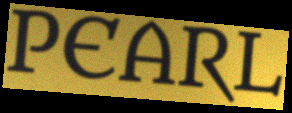
PEARL